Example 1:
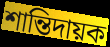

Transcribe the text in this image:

শান্তিদায়ক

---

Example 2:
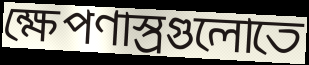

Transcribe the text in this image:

ক্ষেপণাস্ত্রগুলোতে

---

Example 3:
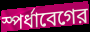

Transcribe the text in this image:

স্পর্ধাবেগের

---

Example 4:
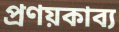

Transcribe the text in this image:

প্রণয়কাব্য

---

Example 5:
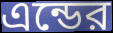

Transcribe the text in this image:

এন্ডের